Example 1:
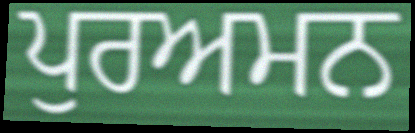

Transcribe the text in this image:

ਪੁਰਅਮਨ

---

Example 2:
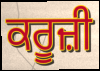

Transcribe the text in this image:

ਕਰੂਜ਼ੀ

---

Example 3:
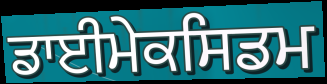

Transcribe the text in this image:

ਡਾਈਮੇਕਸਿਡਮ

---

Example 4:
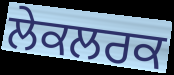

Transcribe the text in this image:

ਲੇਕਲਰਕ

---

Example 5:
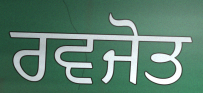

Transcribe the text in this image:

ਰਵਜੋਤ